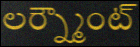
లర్న్మౌంట్